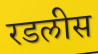
रडलीस